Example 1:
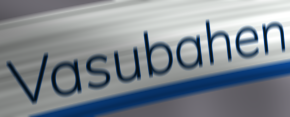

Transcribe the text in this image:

Vasubahen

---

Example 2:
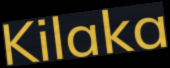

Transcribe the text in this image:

Kilaka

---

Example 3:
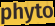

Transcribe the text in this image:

phyto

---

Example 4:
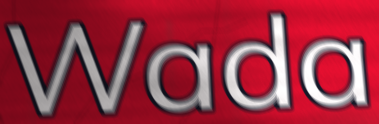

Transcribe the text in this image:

Wada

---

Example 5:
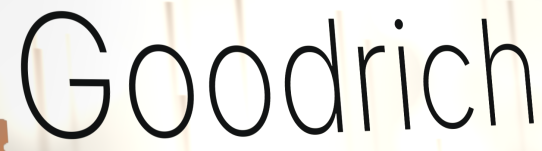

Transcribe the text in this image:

Goodrich